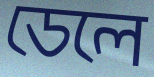
ডেলে